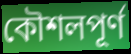
কৌশলপূৰ্ণ